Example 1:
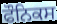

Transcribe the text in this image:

ਫੌਨਿਕਸ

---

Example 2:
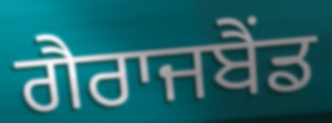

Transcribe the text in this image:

ਗੈਰਾਜਬੈਂਡ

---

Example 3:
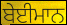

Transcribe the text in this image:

ਬੇਈਮਾਨ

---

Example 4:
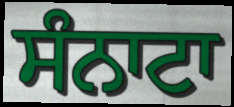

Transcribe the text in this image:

ਸੰਨਾਟਾ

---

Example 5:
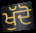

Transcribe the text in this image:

ਖੁੱਦੋ